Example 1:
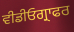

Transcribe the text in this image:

ਵੀਡੀਓਗ੍ਰਾਫਰ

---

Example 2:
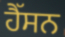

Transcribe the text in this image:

ਹੈੱਸਨ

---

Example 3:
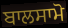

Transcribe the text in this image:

ਬਾਲਸਾਮੋ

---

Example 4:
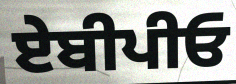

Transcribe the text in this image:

ਏਬੀਪੀਓ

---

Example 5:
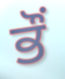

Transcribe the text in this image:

ਭੌਂ